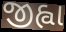
જીહ્વા